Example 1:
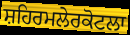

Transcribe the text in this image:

ਸ਼ਹਿਰਮਲੇਰਕੋਟਲਾ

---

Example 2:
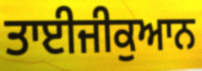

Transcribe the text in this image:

ਤਾਈਜੀਕੁਆਨ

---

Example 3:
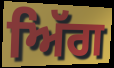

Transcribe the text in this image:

ਅਿੱਗ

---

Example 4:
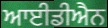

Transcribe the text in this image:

ਆਈਡੀਐਨ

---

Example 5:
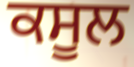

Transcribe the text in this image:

ਕਸੂਲ